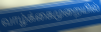
வாழ்க்கைமுறையில்